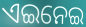
ଏଇନେଇ